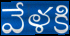
వేళకి